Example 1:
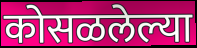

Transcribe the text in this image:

कोसळलेल्या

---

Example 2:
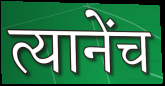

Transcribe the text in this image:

त्यानेंच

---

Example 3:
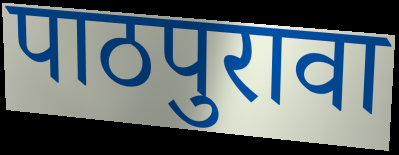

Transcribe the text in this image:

पाठपुरावा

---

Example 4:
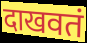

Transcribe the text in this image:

दाखवतं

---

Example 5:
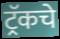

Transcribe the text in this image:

ट्रॅकचे